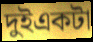
দুইএকটা